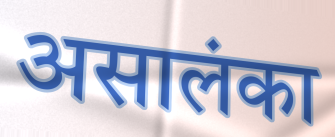
असालंका